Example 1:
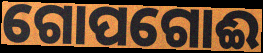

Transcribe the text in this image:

ଗୋପଗୋଈ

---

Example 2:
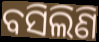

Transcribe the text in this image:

ବସିଲିଣି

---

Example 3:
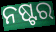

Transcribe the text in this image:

ନଷ୍ଟର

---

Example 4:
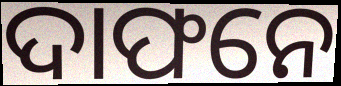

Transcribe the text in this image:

ଦାଫନେ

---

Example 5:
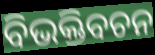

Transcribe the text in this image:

ବିଭକ୍ତିବଚନ